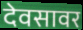
देवसावर